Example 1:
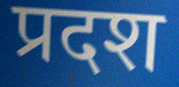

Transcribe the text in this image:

प्रदश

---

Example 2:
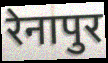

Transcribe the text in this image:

रेनापुर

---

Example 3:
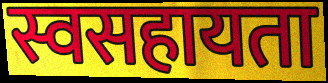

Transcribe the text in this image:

स्‍वसहायता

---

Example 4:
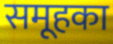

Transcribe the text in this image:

समूहका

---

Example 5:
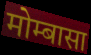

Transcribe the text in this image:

मोम्बासा